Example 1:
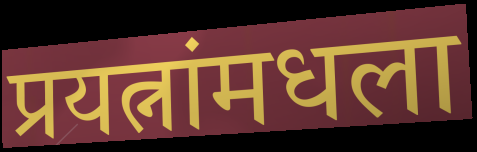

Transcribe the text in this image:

प्रयत्नांमधला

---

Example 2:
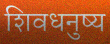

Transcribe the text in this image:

शिवधनुष्य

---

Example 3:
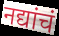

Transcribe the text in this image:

नद्यांचं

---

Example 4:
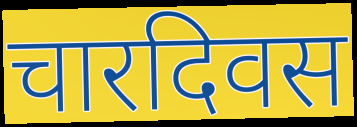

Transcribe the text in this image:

चारदिवस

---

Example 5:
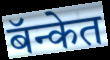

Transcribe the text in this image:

बॅन्केत